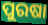
ପୁରଷା